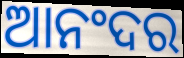
ଆନଂଦର